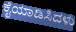
ಕೈಯಾಡಿಸಿದಳು